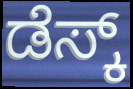
ಡೆಸ್ಕ್